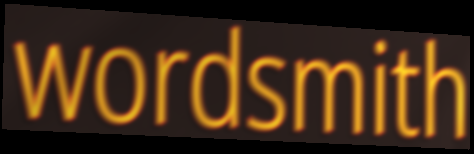
wordsmith